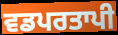
ਵਡਪਰਤਾਪੀ